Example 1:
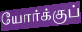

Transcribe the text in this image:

யோர்க்குப்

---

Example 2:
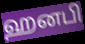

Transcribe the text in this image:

ஹனபி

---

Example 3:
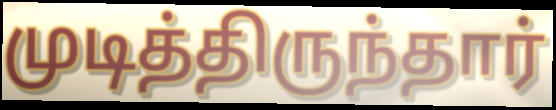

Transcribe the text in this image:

முடித்திருந்தார்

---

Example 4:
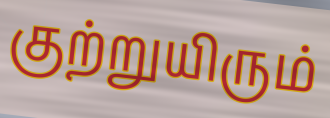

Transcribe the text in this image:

குற்றுயிரும்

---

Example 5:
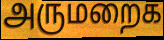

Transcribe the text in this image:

அருமறைக